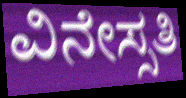
ವಿನೇಸ್ಸತಿ